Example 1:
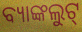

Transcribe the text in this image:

ବ୍ୟାଙ୍କଲୁଟ୍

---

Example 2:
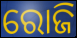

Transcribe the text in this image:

ରୋଜି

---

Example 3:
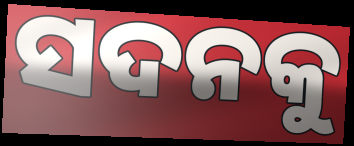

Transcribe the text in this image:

ସଦନକୁ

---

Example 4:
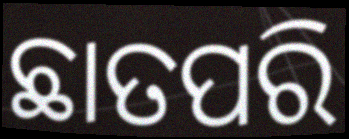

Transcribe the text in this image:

ଛାତପରି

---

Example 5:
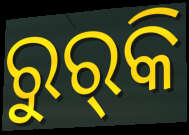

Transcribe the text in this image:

ରୁର୍‍କି